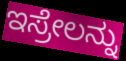
ಇಸ್ರೇಲನ್ನು